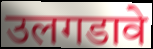
उलगडावे